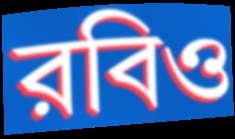
রবিও